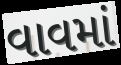
વાવમાં